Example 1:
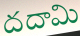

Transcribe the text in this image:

దదామి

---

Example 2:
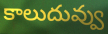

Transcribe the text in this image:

కాలుదువ్వు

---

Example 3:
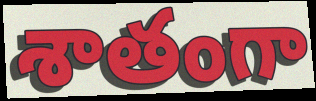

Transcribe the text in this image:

శాతంగా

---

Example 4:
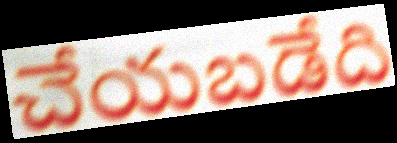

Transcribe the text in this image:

చేయబడేది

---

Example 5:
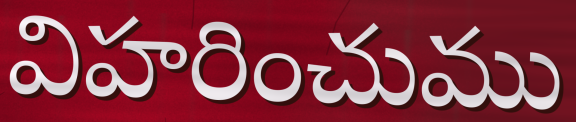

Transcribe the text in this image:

విహరించుము